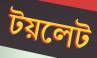
টয়লেট